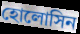
হোলোসিন